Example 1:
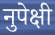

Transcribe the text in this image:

नुपेक्षी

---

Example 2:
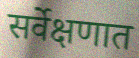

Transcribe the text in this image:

सर्वेक्षणात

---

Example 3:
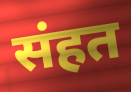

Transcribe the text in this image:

संहत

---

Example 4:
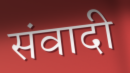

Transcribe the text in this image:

संवादी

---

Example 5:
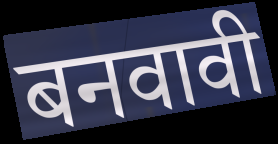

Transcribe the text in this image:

बनवावी